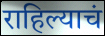
राहिल्याचं